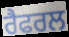
ਰੈਫਰਲ